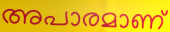
അപാരമാണ്